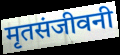
मृतसंजीवनी